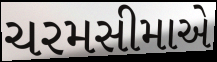
ચરમસીમાએ